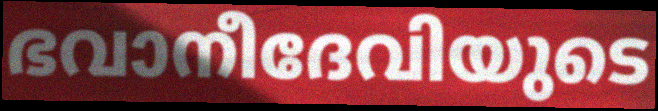
ഭവാനീദേവിയുടെ